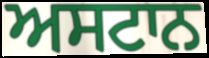
ਅਸਟਾਨ